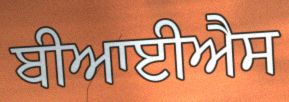
ਬੀਆਈਐਸ